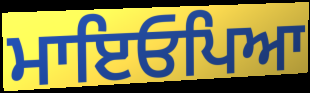
ਮਾਇਓਪਿਆ